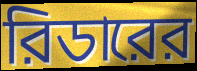
রিডারের